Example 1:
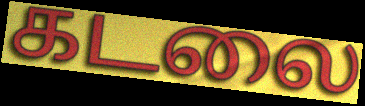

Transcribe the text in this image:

கடலை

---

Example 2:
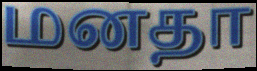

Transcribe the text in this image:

மனதா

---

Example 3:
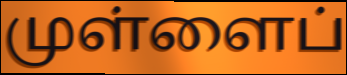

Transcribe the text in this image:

முள்ளைப்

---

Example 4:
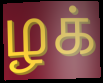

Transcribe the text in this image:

ழக்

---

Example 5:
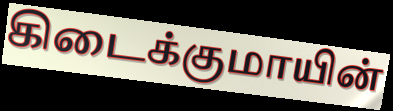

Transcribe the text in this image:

கிடைக்குமாயின்